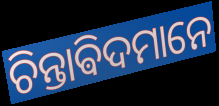
ଚିନ୍ତାଵିଦମାନେ